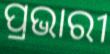
ପ୍ରଭାରୀ